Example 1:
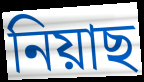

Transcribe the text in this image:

নিয়াছ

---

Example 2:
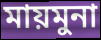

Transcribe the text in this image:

মায়মুনা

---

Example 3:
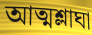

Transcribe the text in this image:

আত্মশ্লাঘা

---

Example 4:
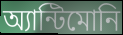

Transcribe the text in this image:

অ্যান্টিমোনি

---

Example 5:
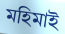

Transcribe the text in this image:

মহিমাই